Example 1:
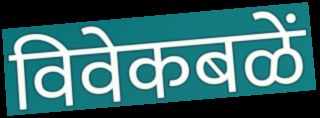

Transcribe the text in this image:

विवेकबळें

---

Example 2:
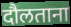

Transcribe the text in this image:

दौलताना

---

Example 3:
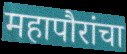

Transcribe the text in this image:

महापौरांचा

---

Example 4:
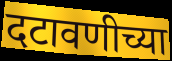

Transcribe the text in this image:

दटावणीच्या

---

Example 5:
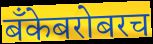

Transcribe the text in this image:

बँकेबरोबरच